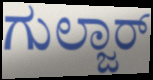
ಗುಲ್ಜಾರ್